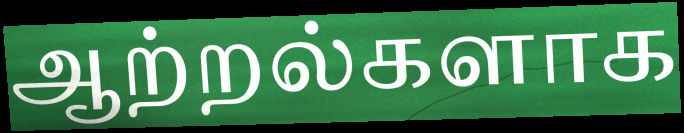
ஆற்றல்களாக